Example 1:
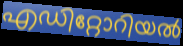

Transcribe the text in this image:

എഡിറ്റോറിയൽ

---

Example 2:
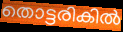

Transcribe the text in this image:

തൊട്ടരികിൽ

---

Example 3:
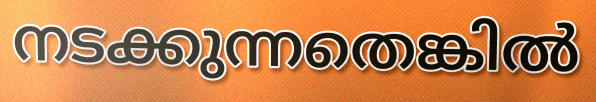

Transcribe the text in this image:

നടക്കുന്നതെങ്കിൽ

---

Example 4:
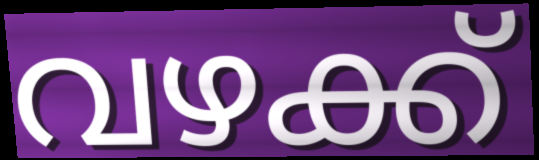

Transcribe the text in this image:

വഴക്ക്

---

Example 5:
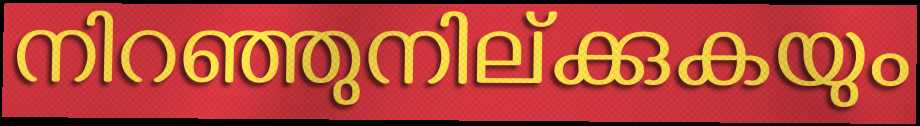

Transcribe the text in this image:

നിറഞ്ഞുനില്ക്കുകയും